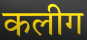
कलीग